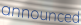
announced